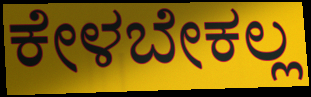
ಕೇಳಬೇಕಲ್ಲ